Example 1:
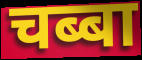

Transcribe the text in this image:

चब्बा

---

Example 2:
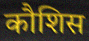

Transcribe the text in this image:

कौशिस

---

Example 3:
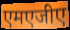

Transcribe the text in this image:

एमएजीए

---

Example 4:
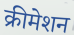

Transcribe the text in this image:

क्रीमेशन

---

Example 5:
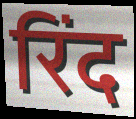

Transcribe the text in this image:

रिंद